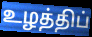
உழத்திப்